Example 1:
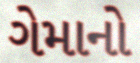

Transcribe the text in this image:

ગેમાનો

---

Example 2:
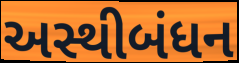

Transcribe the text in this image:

અસ્થીબંધન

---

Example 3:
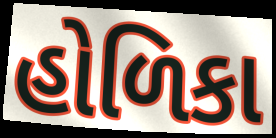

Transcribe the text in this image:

હોળિકા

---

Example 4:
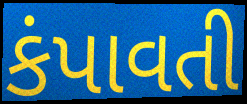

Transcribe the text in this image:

કંપાવતી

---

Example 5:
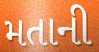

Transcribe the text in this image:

મતાની